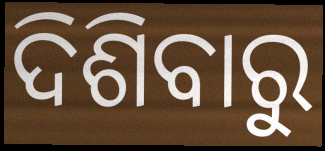
ଦିଶିବାରୁ